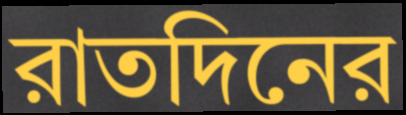
রাতদিনের